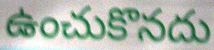
ఉంచుకొనదు